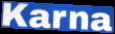
Karna